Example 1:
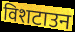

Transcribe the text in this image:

विशटाउन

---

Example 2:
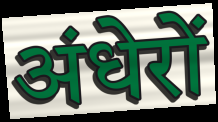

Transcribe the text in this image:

अंधेरों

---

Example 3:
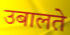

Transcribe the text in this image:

उबालते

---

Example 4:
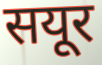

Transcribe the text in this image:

सयूर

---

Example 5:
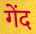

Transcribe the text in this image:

गेंद